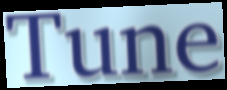
Tune